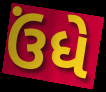
ઉંધે